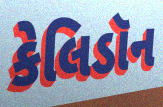
કેલિડૉન